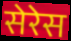
सेरेस